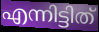
എന്നിട്ടിത്